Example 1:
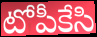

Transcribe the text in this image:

టోపీకేసి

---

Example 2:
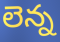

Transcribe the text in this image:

లెన్న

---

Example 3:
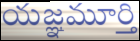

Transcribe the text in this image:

యజ్ఞమూర్తి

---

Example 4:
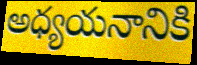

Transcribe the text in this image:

అధ్యయనానికి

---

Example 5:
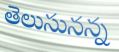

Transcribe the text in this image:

తెలుసునన్న